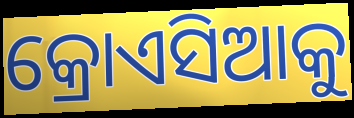
କ୍ରୋଏସିଆକୁ